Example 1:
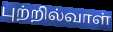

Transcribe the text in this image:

புற்றில்வாள்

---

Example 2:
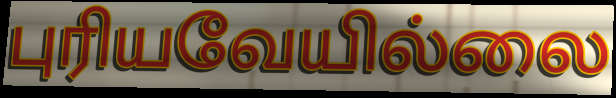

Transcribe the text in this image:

புரியவேயில்லை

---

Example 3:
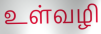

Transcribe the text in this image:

உள்வழி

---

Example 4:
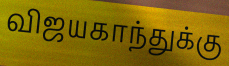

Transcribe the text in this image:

விஜயகாந்துக்கு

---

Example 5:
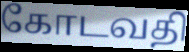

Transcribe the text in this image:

கோடவதி